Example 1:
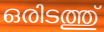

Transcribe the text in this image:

ഒരിടത്തു്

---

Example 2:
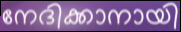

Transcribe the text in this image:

നേദിക്കാനായി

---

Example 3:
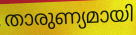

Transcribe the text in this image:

താരുണ്യമായി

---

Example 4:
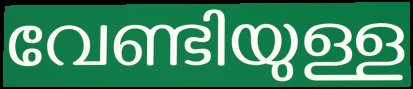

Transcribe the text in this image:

വേണ്ടിയുള്ള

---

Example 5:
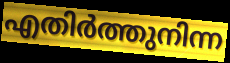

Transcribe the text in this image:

എതിർത്തുനിന്ന